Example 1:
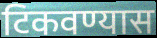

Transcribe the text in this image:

टिकवण्यास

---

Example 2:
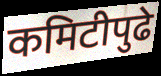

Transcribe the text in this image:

कमिटीपुढे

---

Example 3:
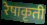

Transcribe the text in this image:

रेषाकृती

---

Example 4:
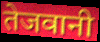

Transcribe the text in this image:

तेजवानी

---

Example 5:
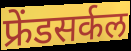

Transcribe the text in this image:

फ्रेंडसर्कल